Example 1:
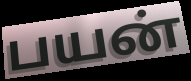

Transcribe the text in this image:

பயன்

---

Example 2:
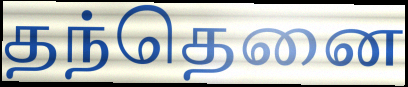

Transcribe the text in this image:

தந்தெனை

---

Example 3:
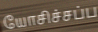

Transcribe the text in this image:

யோசிச்சப்ப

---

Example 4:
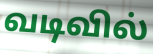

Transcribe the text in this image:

வடிவில்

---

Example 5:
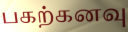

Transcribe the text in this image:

பகற்கனவு